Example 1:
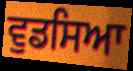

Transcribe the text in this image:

ਵੁਡਸਿਆ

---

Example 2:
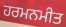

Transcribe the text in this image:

ਹਰਮਨਮੀਤ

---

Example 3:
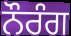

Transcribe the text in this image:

ਨੌਰੰਗ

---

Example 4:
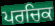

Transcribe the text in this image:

ਪਰਚਿਕ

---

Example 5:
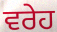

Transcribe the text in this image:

ਵਰੇਹ